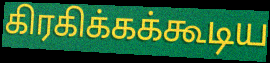
கிரகிக்கக்கூடிய